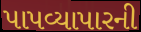
પાપવ્યાપારની